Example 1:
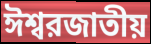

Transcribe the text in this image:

ঈশ্বরজাতীয়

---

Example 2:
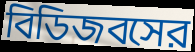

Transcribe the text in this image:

বিডিজবসের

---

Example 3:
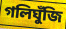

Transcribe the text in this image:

গলিঘুঁজি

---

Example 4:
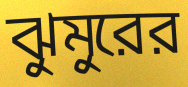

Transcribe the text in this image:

ঝুমুরের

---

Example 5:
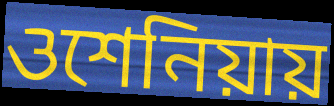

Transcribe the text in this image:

ওশেনিয়ায়